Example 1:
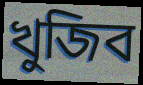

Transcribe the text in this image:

খুজিব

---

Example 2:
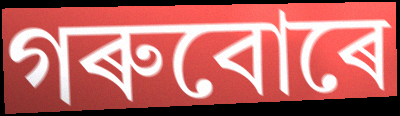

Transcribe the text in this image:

গৰুবোৰে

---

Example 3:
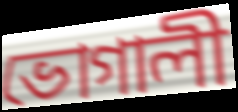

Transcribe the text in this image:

ভোগালী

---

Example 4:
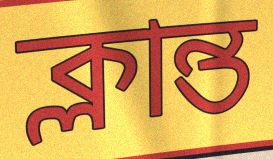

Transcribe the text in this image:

ক্লান্ত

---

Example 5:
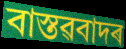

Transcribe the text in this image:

বাস্তৱবাদৰ